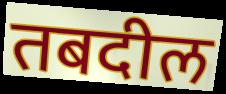
तबदील